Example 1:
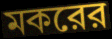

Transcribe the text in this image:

মকরের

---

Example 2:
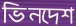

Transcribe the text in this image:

ভিনদেশ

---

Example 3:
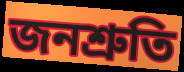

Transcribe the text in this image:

জনশ্রুতি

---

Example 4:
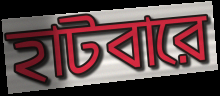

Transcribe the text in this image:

হাটবারে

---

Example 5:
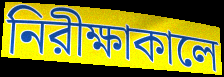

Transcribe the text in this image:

নিরীক্ষাকালে